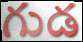
గుడ